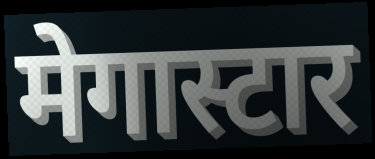
मेगास्टार